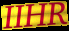
IIHR